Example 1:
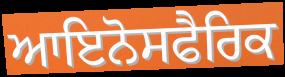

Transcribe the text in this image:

ਆਇਨੋਸਫੈਰਿਕ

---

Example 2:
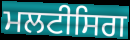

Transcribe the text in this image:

ਮਲਟੀਸਿਗ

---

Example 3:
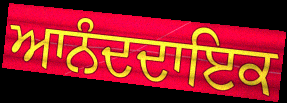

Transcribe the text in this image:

ਆਨੰਦਦਾਇਕ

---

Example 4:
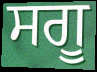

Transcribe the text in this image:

ਸਗੂ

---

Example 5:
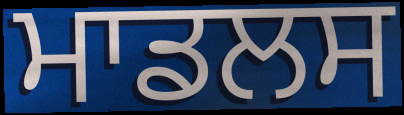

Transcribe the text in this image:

ਮਾਡਲਸ